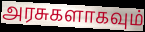
அரசுகளாகவும்